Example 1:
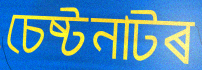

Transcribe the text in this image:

চেষ্টনাটৰ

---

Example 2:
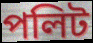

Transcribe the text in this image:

পলিট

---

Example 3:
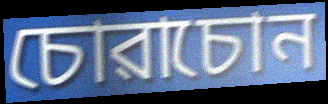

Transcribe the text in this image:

চোৱাচোন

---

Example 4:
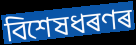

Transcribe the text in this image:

বিশেষধৰণৰ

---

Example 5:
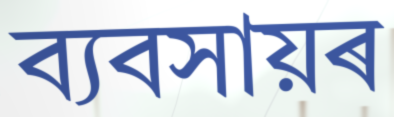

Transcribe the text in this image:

ব্যবসায়ৰ